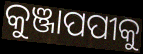
କୁଞ୍ଜାପପୀକୁ